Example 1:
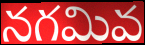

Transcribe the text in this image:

నగమివ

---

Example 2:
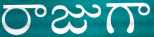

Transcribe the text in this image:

రాజుగా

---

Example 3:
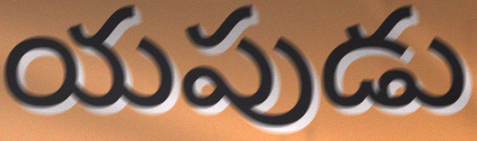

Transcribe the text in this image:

యపుడు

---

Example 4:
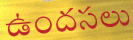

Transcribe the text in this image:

ఉందసలు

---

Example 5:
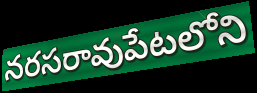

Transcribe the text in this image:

నరసరావుపేటలోని